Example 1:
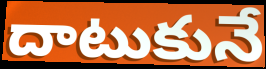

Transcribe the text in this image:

దాటుకునే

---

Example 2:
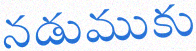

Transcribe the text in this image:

నడుముకు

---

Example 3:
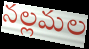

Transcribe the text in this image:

నల్లమల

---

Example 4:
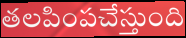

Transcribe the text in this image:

తలపింపచేస్తుంది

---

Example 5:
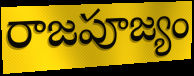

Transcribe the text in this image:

రాజపూజ్యం